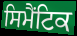
ਸਿਮੈਂਟਿਕ